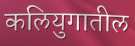
कलियुगातील